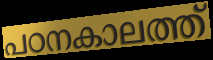
പഠനകാലത്ത്